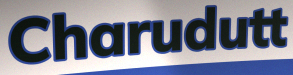
Charudutt